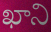
ఖాని